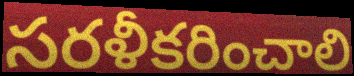
సరళీకరించాలి